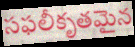
సఫలీకృతమైన